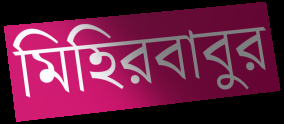
মিহিরবাবুর